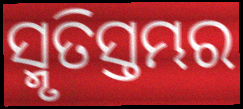
ସ୍ମୃତିସ୍ତମ୍ଭର